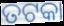
ତଟକା